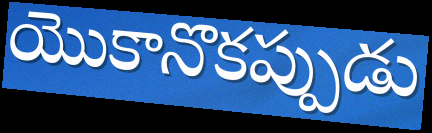
యొకానొకప్పుడు